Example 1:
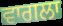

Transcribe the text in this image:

ਵਾਗਲਾ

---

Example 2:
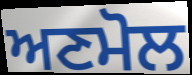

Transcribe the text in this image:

ਅਣਮੋਲ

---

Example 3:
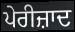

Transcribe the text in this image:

ਪੇਰੀਜ਼ਾਦ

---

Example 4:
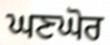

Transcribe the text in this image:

ਘਣਘੋਰ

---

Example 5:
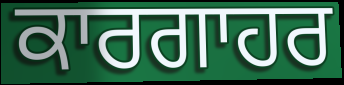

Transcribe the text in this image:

ਕਾਰਗਾਹਰ